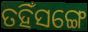
ତହିଁସଙ୍ଗେ